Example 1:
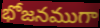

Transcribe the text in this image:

భోజనముగా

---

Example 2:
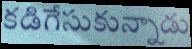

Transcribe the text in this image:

కడిగేసుకున్నాడు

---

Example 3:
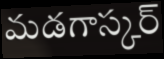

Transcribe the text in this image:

మడగాస్కర్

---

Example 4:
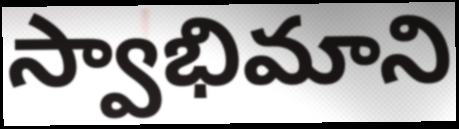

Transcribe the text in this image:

స్వాభిమాని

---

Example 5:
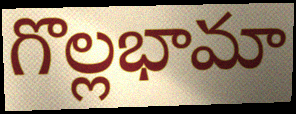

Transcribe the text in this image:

గొల్లభామా